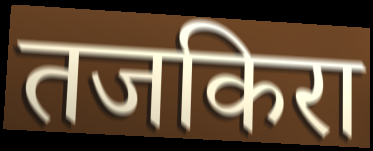
तजकिरा